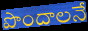
పొందాలనే